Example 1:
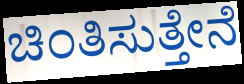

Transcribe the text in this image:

ಚಿಂತಿಸುತ್ತೇನೆ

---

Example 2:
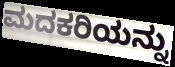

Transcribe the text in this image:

ಮದಕರಿಯನ್ನು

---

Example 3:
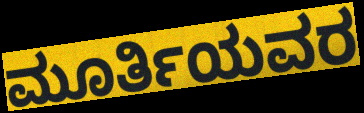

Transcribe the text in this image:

ಮೂರ್ತಿಯವರ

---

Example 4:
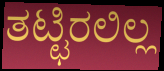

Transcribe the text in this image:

ತಟ್ಟಿರಲಿಲ್ಲ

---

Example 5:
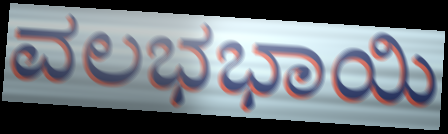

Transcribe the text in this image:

ವಲಭಭಾಯಿ